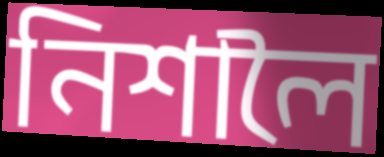
নিশালৈ